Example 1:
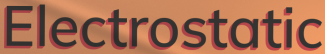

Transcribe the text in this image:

Electrostatic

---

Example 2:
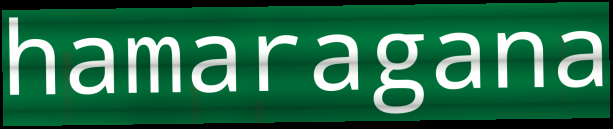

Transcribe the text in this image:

hamaragana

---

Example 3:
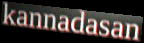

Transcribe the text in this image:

kannadasan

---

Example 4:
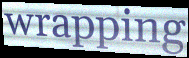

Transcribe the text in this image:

wrapping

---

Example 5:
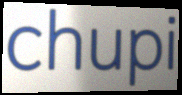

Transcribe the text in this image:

chupi